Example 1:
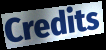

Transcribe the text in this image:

Credits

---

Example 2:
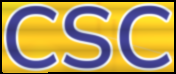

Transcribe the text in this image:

CSC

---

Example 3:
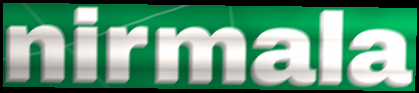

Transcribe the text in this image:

nirmala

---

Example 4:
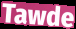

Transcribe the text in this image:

Tawde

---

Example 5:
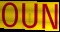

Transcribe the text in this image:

OUN